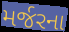
મર્જરના